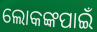
ଲୋକଙ୍କପାଇଁ